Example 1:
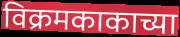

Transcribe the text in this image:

विक्रमकाकाच्या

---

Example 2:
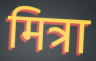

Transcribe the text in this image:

मित्रा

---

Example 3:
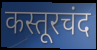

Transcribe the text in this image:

कस्तूरचंद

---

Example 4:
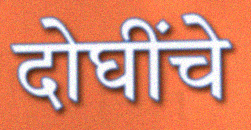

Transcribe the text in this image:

दोघींचे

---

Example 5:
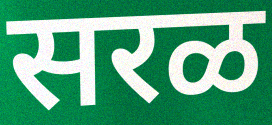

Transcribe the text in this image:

सरळ